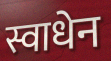
स्वाधेन